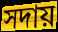
সদায়